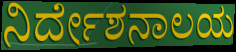
ನಿರ್ದೇಶನಾಲಯ